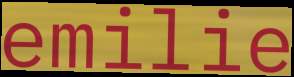
emilie